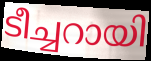
ടീച്ചറായി